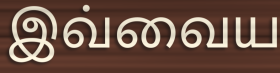
இவ்வைய